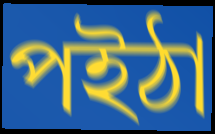
পইঠা